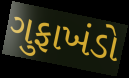
ગુફાખંડો